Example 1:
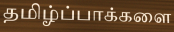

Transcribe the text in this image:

தமிழ்ப்பாக்களை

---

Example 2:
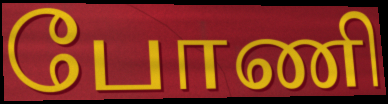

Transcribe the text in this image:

போணி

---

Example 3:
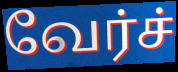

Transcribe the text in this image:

வேர்ச்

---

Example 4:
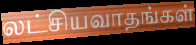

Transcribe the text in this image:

லட்சியவாதங்கள்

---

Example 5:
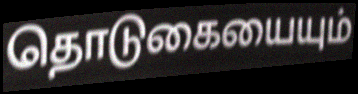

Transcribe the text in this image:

தொடுகையையும்